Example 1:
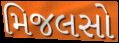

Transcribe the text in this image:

મિજલસો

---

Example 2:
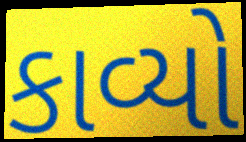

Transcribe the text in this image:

કાવ્યો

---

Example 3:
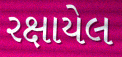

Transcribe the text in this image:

રક્ષાયેલ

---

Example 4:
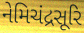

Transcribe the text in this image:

નેમિચંદ્રસૂરિ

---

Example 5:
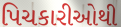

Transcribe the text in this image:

પિચકારીઓથી